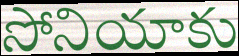
సోనియాకు